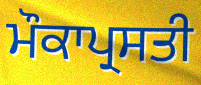
ਮੌਕਾਪ੍ਰਸਤੀ